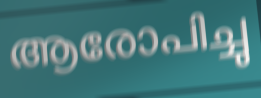
ആരോപിച്ചു